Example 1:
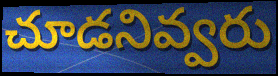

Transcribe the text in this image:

చూడనివ్వరు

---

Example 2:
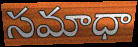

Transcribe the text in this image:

సమాధా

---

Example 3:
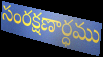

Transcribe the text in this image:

సంరక్షణార్ధము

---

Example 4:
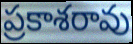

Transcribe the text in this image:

ప్రకాశరావు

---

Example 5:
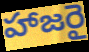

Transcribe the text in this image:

హాజరై